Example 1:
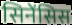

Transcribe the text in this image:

सिनेंसिस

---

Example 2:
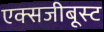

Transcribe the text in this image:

एक्सजीबूस्ट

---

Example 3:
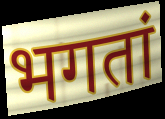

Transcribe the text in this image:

भगतां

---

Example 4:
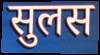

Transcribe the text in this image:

सुलस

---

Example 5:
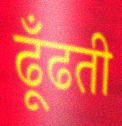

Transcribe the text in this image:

ढूँढती